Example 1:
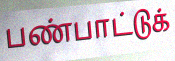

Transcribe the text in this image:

பண்பாட்டுக்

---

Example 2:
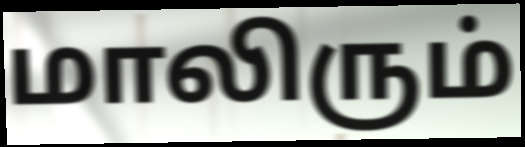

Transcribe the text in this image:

மாலிரும்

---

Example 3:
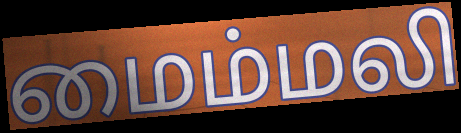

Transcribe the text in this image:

மைம்மலி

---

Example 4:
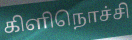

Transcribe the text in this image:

கிளிநொச்சி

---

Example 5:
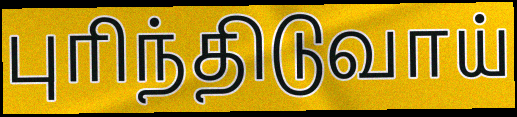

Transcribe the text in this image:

புரிந்திடுவாய்